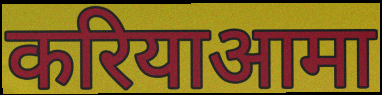
करियाआमा